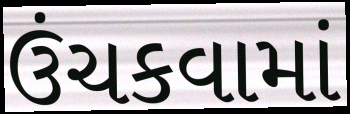
ઉંચકવામાં